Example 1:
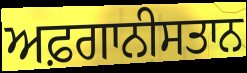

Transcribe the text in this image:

ਅਫ਼ਗਾਨੀਸਤਾਨ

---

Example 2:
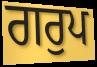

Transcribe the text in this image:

ਗਰੁਪ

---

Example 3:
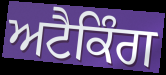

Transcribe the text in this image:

ਅਟੈਕਿੰਗ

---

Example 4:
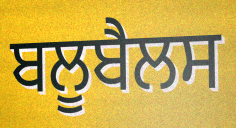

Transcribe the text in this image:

ਬਲੂਬੈਲਸ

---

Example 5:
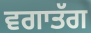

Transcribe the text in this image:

ਵਗਾਤੱਗ